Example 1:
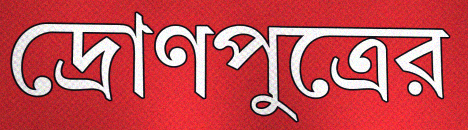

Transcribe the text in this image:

দ্রোণপুত্রের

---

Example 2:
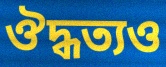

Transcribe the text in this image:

ঔদ্ধত্যও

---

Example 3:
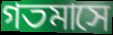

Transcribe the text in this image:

গতমাসে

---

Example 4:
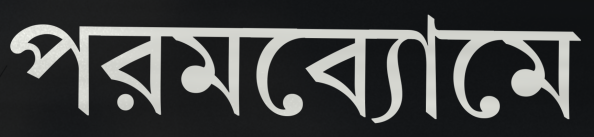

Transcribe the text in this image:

পরমব্যোমে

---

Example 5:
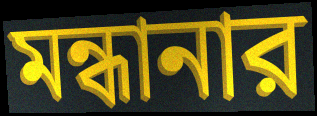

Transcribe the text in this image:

মন্ধানার